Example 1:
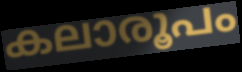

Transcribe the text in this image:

കലാരൂപം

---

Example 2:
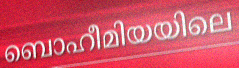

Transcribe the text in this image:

ബൊഹീമിയയിലെ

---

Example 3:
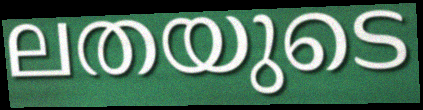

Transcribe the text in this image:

ലതയുടെ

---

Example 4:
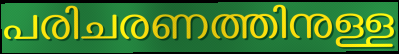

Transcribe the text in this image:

പരിചരണത്തിനുള്ള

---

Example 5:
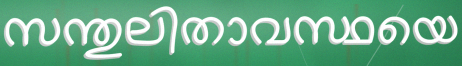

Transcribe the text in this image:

സന്തുലിതാവസ്ഥയെ